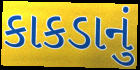
કાકડાનું